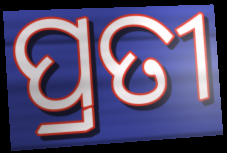
ପ୍ରତୀ